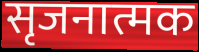
सृजनात्मक